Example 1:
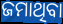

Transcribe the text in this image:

ଜମାଥିବା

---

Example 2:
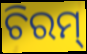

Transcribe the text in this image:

ଚିରମ୍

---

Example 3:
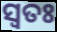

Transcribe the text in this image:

ସ୍ଵତଃ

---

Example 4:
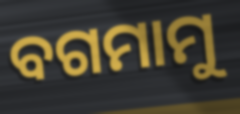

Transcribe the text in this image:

ବଗମାମୁ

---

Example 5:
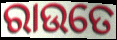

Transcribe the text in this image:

ରାଉତେ